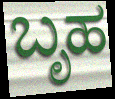
ಬೃಹ